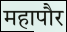
महापौर